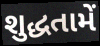
શુદ્ધતામેં